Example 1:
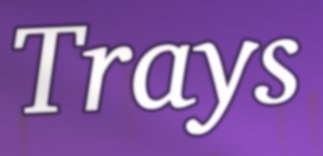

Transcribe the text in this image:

Trays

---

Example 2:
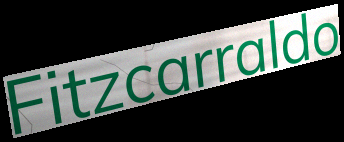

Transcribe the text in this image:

Fitzcarraldo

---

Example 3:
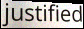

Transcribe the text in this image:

justified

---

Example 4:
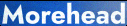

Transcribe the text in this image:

Morehead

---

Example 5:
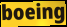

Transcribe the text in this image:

boeing